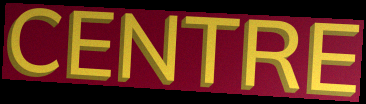
CENTRE